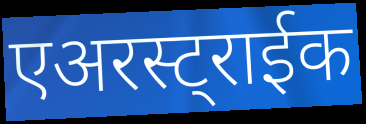
एअरस्ट्राईक